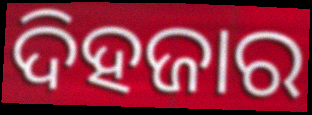
ଦିହଜାର